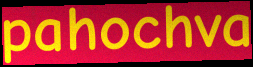
pahochva